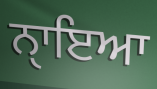
ਨੑਾਇਆ